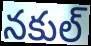
నకుల్